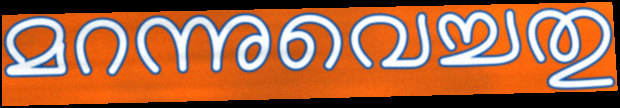
മറന്നുവെച്ചതു